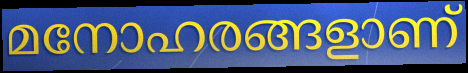
മനോഹരങ്ങളാണ്